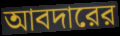
আবদারের